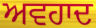
ਅਵਹਾਦ